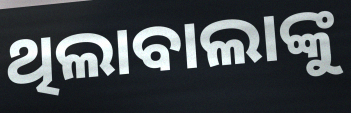
ଥିଲାବାଲାଙ୍କୁ